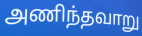
அணிந்தவாறு